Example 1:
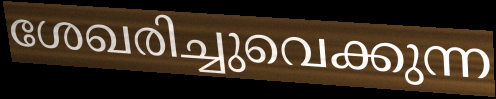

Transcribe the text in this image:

ശേഖരിച്ചുവെക്കുന്ന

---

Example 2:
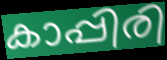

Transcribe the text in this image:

കാപ്പിരി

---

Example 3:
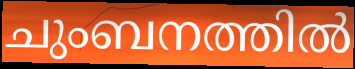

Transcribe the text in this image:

ചുംബനത്തിൽ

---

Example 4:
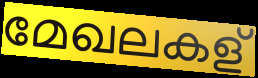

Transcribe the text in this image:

മേഖലകള്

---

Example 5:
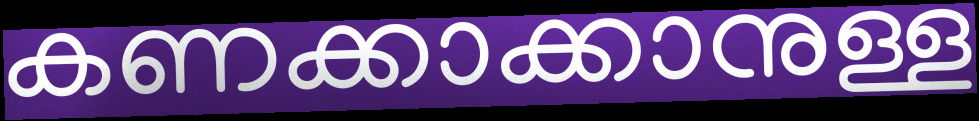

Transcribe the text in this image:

കണക്കാക്കാനുള്ള